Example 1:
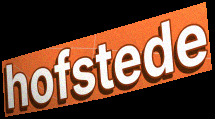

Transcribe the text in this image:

hofstede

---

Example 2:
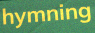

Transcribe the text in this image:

hymning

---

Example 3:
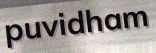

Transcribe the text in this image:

puvidham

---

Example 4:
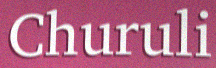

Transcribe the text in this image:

Churuli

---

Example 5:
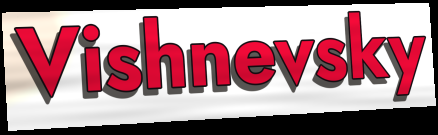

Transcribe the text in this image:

Vishnevsky